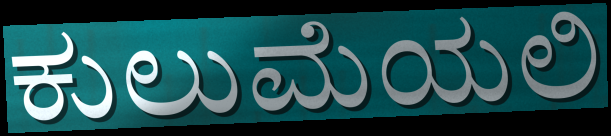
ಕುಲುಮೆಯಲಿ